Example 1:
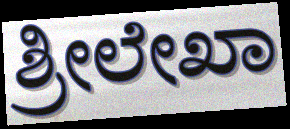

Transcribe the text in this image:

ಶ್ರೀಲೇಖಾ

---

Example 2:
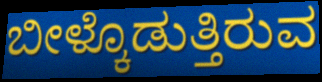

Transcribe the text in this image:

ಬೀಳ್ಕೊಡುತ್ತಿರುವ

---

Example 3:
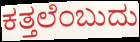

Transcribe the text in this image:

ಕತ್ತಲೆಂಬುದು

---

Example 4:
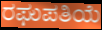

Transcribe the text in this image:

ರಘುಪತಿಯೆ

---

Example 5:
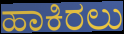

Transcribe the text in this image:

ಹಾಕಿರಲು